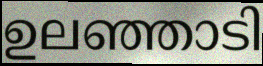
ഉലഞ്ഞാടി